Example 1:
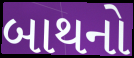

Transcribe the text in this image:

બાથનો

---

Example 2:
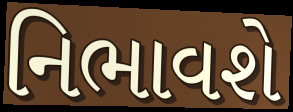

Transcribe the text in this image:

નિભાવશે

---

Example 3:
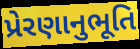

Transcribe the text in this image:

પ્રેરણાનુભૂતિ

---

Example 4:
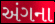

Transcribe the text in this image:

અંગના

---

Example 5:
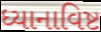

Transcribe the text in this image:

ધ્યાનાવિષ્ટ